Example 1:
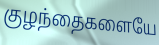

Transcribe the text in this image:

குழந்தைகளையே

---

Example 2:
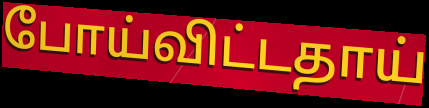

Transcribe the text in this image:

போய்விட்டதாய்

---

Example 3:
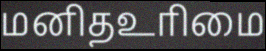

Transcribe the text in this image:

மனிதஉரிமை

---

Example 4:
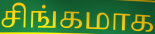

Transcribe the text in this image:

சிங்கமாக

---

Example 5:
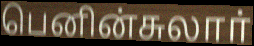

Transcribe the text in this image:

பெனின்சுலார்